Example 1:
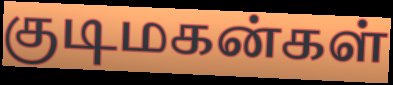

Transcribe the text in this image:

குடிமகன்கள்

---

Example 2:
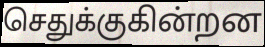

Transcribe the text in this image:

செதுக்குகின்றன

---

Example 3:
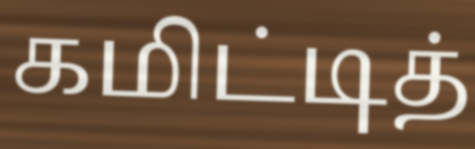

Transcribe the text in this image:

கமிட்டித்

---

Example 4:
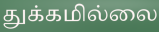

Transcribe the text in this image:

துக்கமில்லை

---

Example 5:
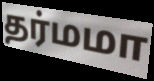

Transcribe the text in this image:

தர்மமா